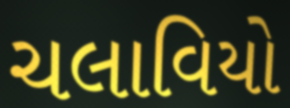
ચલાવિયો